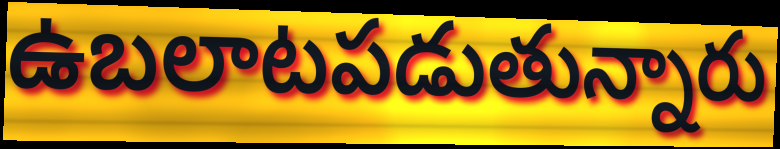
ఉబలాటపడుతున్నారు